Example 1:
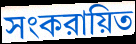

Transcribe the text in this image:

সংকরায়িত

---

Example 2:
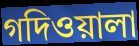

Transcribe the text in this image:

গদিওয়ালা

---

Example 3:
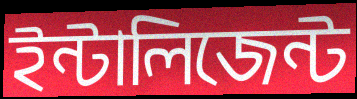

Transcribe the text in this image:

ইন্টালিজেন্ট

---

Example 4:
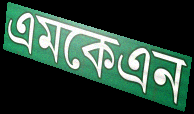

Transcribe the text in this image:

এমকেএন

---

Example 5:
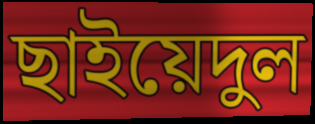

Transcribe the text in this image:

ছাইয়েদুল